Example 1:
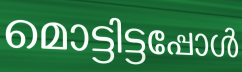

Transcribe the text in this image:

മൊട്ടിട്ടപ്പോൾ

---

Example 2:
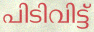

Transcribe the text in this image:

പിടിവിട്ട്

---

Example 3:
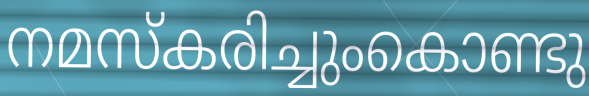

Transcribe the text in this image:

നമസ്കരിച്ചുംകൊണ്ടു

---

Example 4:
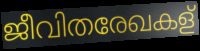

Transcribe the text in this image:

ജീവിതരേഖകള്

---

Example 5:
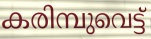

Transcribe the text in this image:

കരിമ്പുവെട്ട്